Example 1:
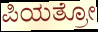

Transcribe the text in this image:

ಪಿಯತ್ರೋ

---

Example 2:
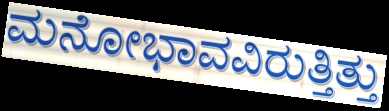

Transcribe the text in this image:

ಮನೋಭಾವವಿರುತ್ತಿತ್ತು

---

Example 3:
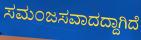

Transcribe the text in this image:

ಸಮಂಜಸವಾದದ್ದಾಗಿದೆ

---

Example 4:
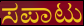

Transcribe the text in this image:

ಸಪಾಟು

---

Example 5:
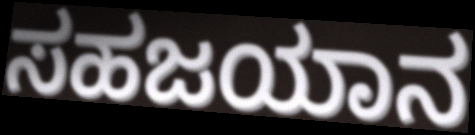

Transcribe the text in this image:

ಸಹಜಯಾನ